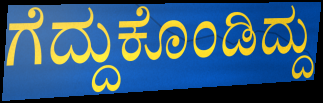
ಗೆದ್ದುಕೊಂಡಿದ್ದು